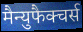
मैन्युफैक्चर्स